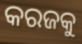
କରଜକୁ